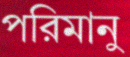
পরিমানু